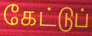
கேட்டுப்